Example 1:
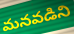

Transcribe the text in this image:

మనవడిని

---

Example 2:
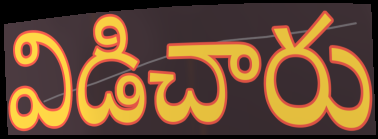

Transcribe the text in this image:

విడిచారు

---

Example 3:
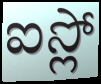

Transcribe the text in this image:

ఐస్లో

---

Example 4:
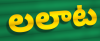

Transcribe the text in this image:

లలాట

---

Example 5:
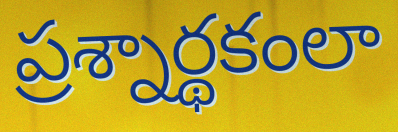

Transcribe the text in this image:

ప్రశ్నార్థకంలా